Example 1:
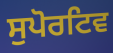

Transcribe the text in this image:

ਸੁਪੋਰਟਿਵ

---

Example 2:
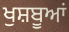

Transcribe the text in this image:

ਖੁਸ਼ਬੂਆਂ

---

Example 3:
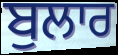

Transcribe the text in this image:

ਬੁਲਾਰ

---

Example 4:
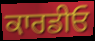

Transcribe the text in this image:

ਕਾਰਡੀਓ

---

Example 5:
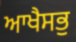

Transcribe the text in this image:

ਆਖੈਸਭੁ